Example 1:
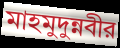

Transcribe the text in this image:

মাহমুদুন্নবীর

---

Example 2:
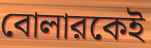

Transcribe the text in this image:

বোলারকেই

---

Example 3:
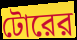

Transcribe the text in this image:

টোরের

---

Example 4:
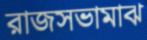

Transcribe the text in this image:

রাজসভামাঝ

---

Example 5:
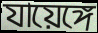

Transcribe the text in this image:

যায়েঙ্গে